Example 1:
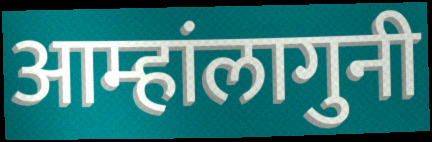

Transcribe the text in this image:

आम्हांलागुनी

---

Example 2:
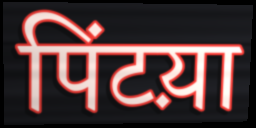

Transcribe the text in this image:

पिंटय़ा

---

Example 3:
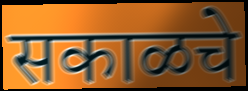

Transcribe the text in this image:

सकाळचे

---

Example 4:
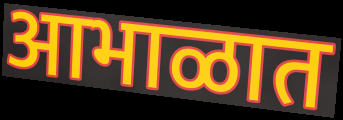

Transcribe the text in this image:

आभाळात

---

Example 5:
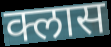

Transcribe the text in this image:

क्लास